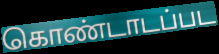
கொண்டாடப்பட